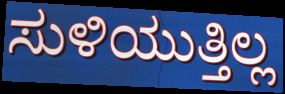
ಸುಳಿಯುತ್ತಿಲ್ಲ